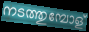
നടത്തുമ്പോള്